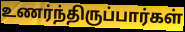
உணர்ந்திருப்பார்கள்